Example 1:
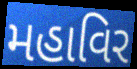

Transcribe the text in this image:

મહાવિર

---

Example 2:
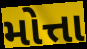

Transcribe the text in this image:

મોત્તા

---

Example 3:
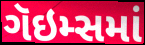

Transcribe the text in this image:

ગૅઇમ્સમાં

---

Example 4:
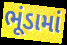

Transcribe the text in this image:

ભૂંડામાં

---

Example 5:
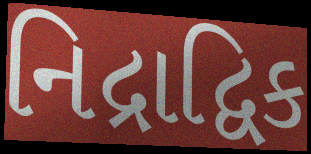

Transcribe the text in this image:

નિદ્રાદ્વિક